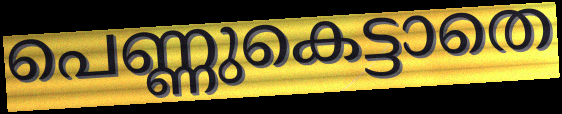
പെണ്ണുകെട്ടാതെ